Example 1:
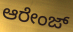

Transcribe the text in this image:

ಆರೇಂಜ್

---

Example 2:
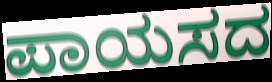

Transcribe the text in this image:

ಪಾಯಸದ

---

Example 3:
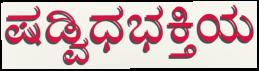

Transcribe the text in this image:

ಷಡ್ವಿಧಭಕ್ತಿಯ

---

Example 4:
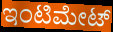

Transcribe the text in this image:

ಇಂಟಿಮೇಟ್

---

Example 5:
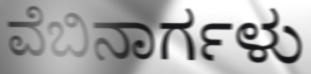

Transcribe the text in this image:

ವೆಬಿನಾರ್ಗಳು